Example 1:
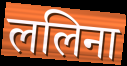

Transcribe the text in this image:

ललिना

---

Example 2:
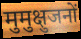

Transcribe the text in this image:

मुमुक्षुजनों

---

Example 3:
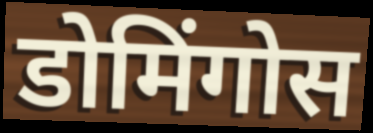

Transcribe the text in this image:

डोमिंगोस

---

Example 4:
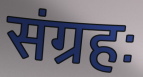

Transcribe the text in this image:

संग्रहः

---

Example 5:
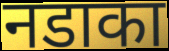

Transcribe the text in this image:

नडाका